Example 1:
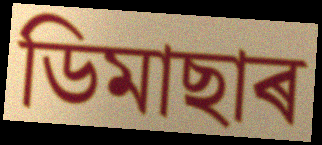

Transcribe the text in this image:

ডিমাছাৰ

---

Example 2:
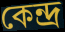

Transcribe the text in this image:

কেন্দ্ৰ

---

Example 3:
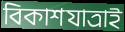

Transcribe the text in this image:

বিকাশযাত্ৰাই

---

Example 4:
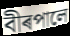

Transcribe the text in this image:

বীৰপালে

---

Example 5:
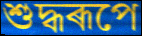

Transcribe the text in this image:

শুদ্ধৰূপে